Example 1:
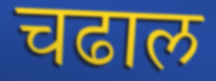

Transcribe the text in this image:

चढाल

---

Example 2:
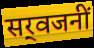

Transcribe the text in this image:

सर्वजनीं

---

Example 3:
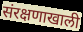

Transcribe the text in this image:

संरक्षणाखाली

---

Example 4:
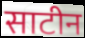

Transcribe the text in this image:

साटीन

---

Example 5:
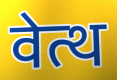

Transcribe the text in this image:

वेत्थ